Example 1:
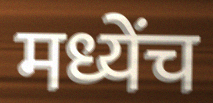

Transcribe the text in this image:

मध्येंच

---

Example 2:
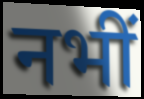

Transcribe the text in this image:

नभीं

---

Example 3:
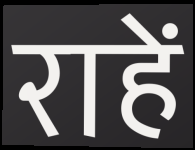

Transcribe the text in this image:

राहें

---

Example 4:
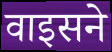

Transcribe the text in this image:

वाइसने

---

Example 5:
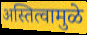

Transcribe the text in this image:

अस्तित्वामुळे